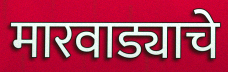
मारवाड्याचे